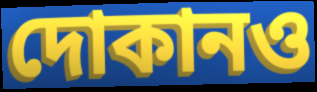
দোকানও